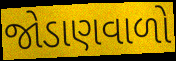
જોડાણવાળો